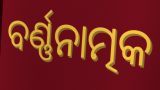
ବର୍ଣ୍ଣନାତ୍ମକ